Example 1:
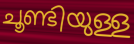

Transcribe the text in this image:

ചൂണ്ടിയുള്ള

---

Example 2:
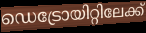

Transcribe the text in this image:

ഡെട്രോയിറ്റിലേക്ക്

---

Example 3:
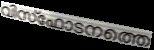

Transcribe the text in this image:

വിസ്ഫോടനത്തെ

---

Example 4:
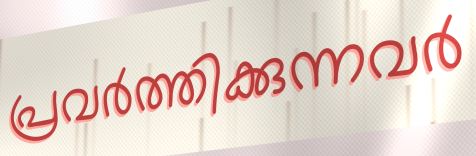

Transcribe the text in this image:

പ്രവർത്തിക്കുന്നവർ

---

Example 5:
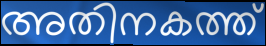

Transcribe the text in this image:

അതിനകത്ത്